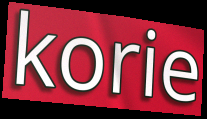
korie